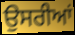
ਉਸਰੀਆਂ